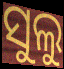
ସୁଲୁ